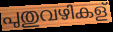
പുതുവഴികള്